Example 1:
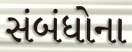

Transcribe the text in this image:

સંબંધોના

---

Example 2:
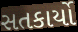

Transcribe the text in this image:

સતકાર્યો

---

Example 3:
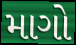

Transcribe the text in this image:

માગો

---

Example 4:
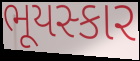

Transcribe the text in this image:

ભૂયસ્કાર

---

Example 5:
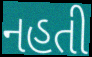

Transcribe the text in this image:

નહતી